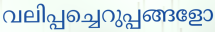
വലിപ്പച്ചെറുപ്പങ്ങളോ